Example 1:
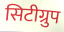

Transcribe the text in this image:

सिटीग्रुप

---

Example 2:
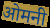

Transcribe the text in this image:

ओमनी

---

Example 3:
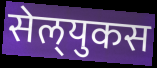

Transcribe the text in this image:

सेल्युकस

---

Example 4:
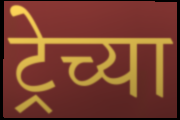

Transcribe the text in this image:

ट्रेच्या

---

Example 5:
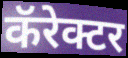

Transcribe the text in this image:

कॅरेक्टर